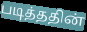
படித்ததின்